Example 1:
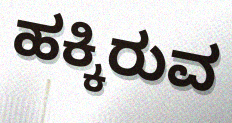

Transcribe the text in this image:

ಹಕ್ಕಿರುವ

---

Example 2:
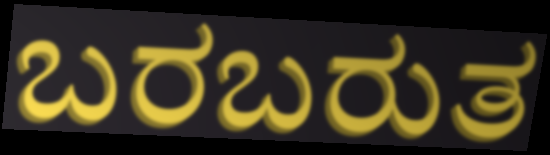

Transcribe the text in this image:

ಬರಬರುತ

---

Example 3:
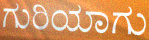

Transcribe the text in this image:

ಗುರಿಯಾಗು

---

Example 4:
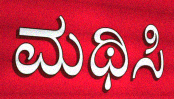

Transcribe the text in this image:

ಮಥಿಸಿ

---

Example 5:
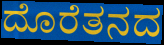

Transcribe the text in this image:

ದೊರೆತನದ